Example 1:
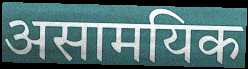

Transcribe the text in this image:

असामयिक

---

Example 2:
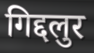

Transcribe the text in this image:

गिद्दलुर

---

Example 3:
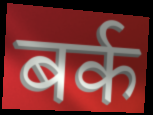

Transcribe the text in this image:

बर्क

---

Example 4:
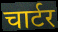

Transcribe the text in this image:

चार्टर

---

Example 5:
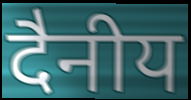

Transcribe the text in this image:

दैनीय